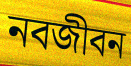
নবজীবন